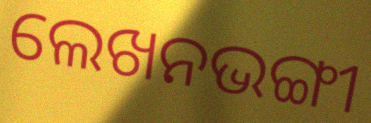
ଲେଖନଭଙ୍ଗୀ